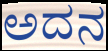
ಅದನ